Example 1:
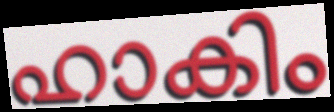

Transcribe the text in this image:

ഹാകിം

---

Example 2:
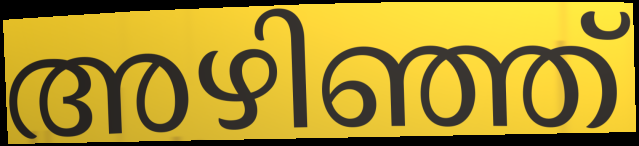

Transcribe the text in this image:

അഴിഞ്ഞ്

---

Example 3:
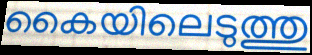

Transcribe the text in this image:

കൈയിലെടുത്തു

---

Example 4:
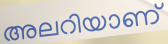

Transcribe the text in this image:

അലറിയാണ്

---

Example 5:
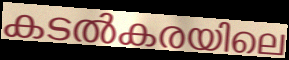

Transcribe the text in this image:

കടൽകരയിലെ